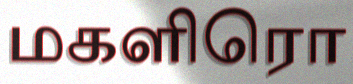
மகளிரொ